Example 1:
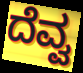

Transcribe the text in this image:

ದೆವ್ವ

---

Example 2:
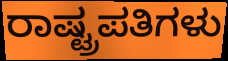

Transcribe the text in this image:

ರಾಷ್ಟ್ರಪತಿಗಳು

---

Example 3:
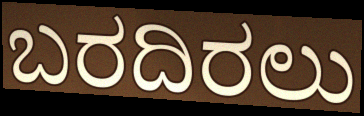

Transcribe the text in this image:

ಬರದಿರಲು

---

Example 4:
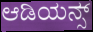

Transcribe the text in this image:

ಆಡಿಯನ್ಸ್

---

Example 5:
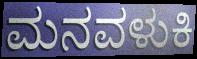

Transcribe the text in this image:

ಮನವಳುಕಿ